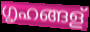
ഗൃഹങ്ങള്